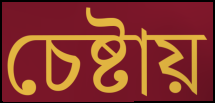
চেষ্টায়